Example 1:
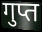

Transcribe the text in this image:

गुप्त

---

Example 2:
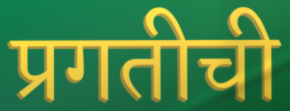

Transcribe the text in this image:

प्रगतीची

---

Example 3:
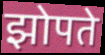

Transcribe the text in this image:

झोपते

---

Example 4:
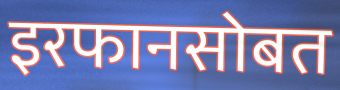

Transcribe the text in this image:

इरफानसोबत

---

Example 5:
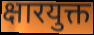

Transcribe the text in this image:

क्षारयुक्त